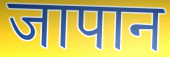
जापान